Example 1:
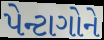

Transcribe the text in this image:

પેન્ટાગોને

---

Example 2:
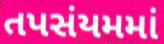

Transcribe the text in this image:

તપસંયમમાં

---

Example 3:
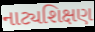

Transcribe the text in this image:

નાટ્યશિક્ષણ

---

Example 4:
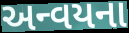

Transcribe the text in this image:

અન્વયના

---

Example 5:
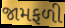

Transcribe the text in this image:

જામફળી